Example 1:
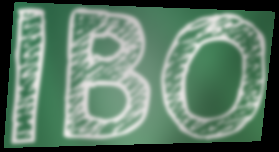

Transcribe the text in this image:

IBO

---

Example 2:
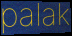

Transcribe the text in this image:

palak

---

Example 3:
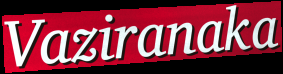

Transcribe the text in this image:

Vaziranaka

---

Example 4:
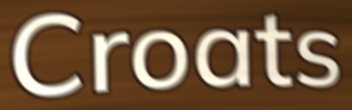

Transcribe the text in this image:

Croats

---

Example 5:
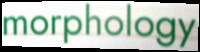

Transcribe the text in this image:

morphology